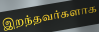
இறந்தவர்களாக